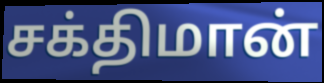
சக்திமான்